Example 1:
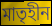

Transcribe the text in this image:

মাতৃহীন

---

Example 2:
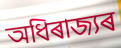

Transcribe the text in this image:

অধিৰাজ্যৰ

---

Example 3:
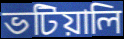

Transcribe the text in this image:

ভটিয়ালি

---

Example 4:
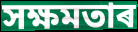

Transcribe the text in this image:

সক্ষমতাৰ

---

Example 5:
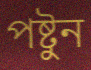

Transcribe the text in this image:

পষ্টুন